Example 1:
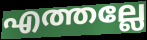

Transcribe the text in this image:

എത്തല്ലേ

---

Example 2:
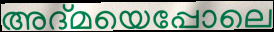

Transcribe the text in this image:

അദ്മയെപ്പോലെ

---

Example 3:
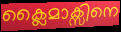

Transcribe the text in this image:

ക്ലൈമാക്സിനെ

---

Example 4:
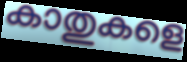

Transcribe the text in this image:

കാതുകളെ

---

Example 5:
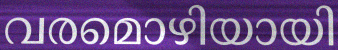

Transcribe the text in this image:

വരമൊഴിയായി